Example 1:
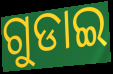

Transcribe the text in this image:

ଗୁଡାଇ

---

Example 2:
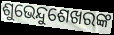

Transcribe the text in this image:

ଶୁଭେନ୍ଦୁଶେଖରଙ୍କ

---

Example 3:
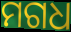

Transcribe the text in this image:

ମଗଧ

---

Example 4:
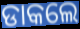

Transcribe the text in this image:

ଡାକଲେ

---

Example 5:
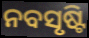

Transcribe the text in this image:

ନବସୃଷ୍ଟି